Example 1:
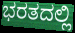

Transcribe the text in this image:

ಭರತದಲ್ಲಿ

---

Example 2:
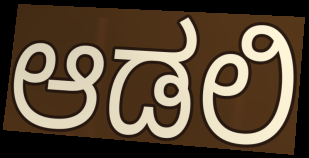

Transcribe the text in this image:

ಆಡಲಿ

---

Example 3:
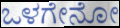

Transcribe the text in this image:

ಒಳಗೇನೋ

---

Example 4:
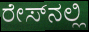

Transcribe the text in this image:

ರೇಸ್‍ನಲ್ಲಿ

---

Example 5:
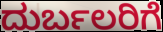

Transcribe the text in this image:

ದುರ್ಬಲರಿಗೆ